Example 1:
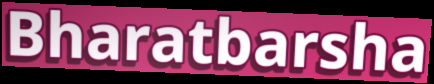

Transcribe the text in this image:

Bharatbarsha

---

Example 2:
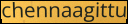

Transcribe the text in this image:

chennaagittu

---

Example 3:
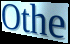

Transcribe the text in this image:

Othe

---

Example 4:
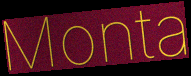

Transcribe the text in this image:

Monta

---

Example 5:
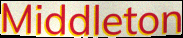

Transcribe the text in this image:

Middleton